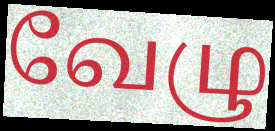
வேழு